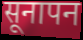
सूनापन